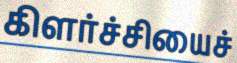
கிளர்ச்சியைச்